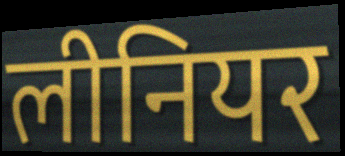
लीनियर